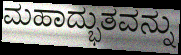
ಮಹಾದ್ಭುತವನ್ನು